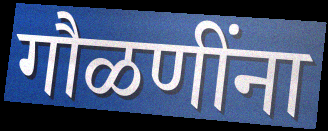
गौळणींना